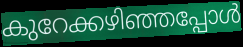
കുറേക്കഴിഞ്ഞപ്പോൾ